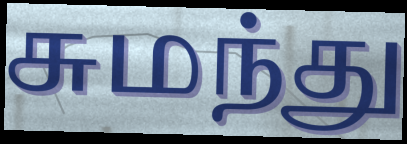
சுமந்து